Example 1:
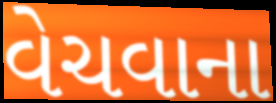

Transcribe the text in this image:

વેચવાના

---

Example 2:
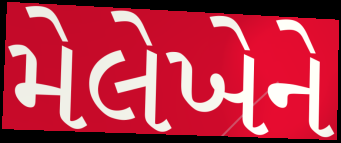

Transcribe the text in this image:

મેલેખેને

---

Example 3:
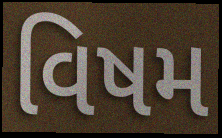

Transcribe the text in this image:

વિષમ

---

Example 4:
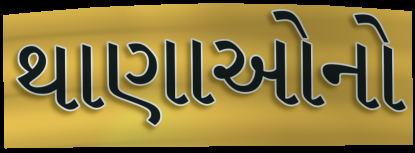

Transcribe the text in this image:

થાણાઓનો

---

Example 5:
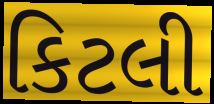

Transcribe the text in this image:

કિટલી